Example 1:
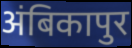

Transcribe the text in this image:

अंबिकापुर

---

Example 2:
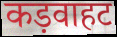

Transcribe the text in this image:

कड़वाहट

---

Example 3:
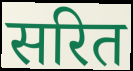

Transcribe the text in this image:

सरित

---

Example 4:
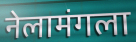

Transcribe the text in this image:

नेलामंगला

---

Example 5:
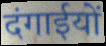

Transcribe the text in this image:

दंगाईयों